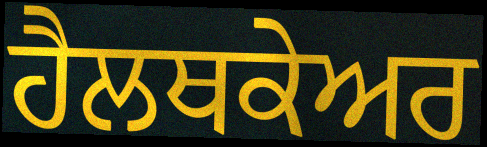
ਹੈਲਥਕੇਅਰ